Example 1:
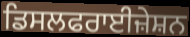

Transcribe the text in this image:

ਡਿਸਲਫਰਾਈਜ਼ੇਸ਼ਨ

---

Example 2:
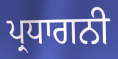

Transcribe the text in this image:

ਪ੍ਰਧਾਗਨੀ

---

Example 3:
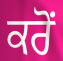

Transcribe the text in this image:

ਕਰੋਂ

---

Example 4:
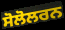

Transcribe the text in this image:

ਸੋਲੋਲਰਨ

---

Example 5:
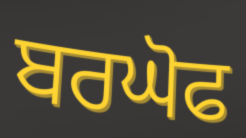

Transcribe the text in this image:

ਬਰਘੋਫ